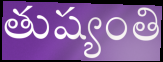
తుష్యంతి